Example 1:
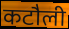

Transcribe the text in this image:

कटौली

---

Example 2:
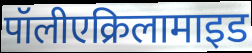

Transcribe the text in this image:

पॉलीएक्रिलामाइड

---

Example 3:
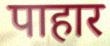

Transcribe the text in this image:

पाहार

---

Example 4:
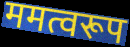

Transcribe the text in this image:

ममत्वरूप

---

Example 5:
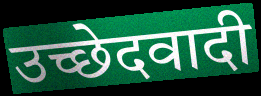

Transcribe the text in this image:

उच्छेदवादी